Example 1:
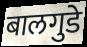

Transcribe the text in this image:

बालगुडे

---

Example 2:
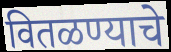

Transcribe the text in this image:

वितळण्याचे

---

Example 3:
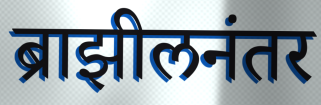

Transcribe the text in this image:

ब्राझीलनंतर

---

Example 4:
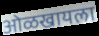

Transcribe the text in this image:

ओळखायला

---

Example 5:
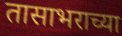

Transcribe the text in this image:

तासाभराच्या